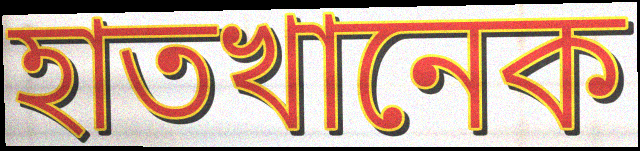
হাতখানেক